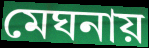
মেঘনায়